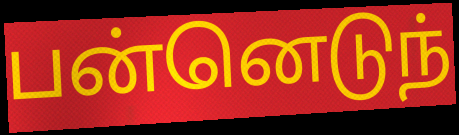
பன்னெடுந்